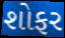
શોફર